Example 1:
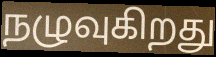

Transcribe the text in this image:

நழுவுகிறது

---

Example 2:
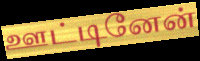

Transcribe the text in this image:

ஊட்டினேன்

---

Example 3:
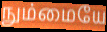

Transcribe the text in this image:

நும்மையே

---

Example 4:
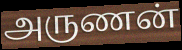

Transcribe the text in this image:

அருணன்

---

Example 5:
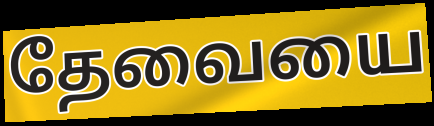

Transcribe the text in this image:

தேவையை